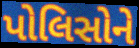
પોલિસોને